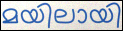
മയിലായി